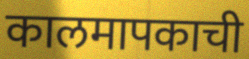
कालमापकाची